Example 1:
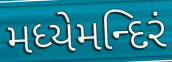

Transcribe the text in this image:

મધ્યેમન્દિરં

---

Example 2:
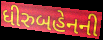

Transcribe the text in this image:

ધીરુબહેનની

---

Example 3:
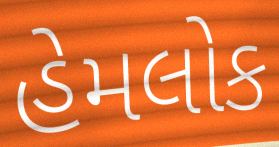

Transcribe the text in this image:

હેમલોક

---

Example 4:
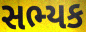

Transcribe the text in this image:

સભ્યક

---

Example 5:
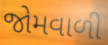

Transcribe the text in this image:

જોમવાળી